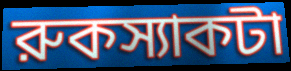
রুকস্যাকটা